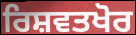
ਰਿਸ਼ਵਤਖੋਰ